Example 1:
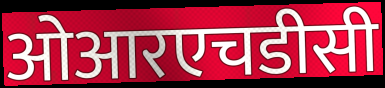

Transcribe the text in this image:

ओआरएचडीसी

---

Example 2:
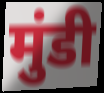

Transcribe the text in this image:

मुंडी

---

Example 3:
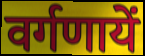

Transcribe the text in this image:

वर्गणायें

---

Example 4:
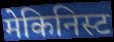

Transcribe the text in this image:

मेकिनिस्ट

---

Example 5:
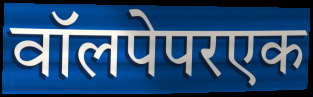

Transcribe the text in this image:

वॉलपेपरएक